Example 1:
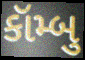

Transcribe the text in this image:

કૉમ્બુ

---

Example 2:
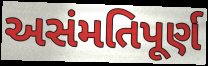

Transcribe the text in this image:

અસંમતિપૂર્ણ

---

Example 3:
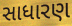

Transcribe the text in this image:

સાધારણ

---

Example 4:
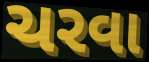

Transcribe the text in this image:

ચરવા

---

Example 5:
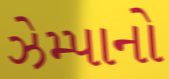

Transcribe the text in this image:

ઝેમ્પાનો